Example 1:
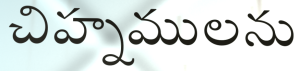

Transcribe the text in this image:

చిహ్నములను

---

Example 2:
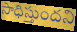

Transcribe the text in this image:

సాధిస్తుందని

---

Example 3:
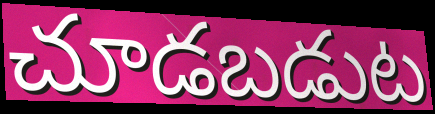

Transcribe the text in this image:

చూడబడుట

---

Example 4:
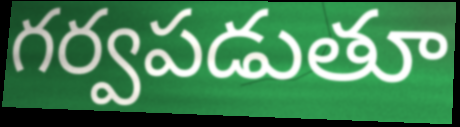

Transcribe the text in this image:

గర్వపడుతూ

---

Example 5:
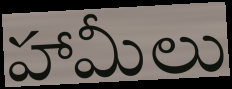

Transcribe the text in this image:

హామీలు